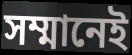
সম্মানেই